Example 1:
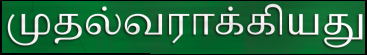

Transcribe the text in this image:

முதல்வராக்கியது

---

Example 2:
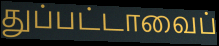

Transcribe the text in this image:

துப்பட்டாவைப்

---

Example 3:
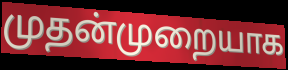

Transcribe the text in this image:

முதன்முறையாக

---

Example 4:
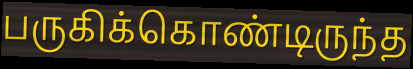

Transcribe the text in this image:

பருகிக்கொண்டிருந்த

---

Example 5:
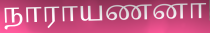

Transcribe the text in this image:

நாராயணனா